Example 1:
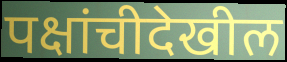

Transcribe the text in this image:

पक्षांचीदेखील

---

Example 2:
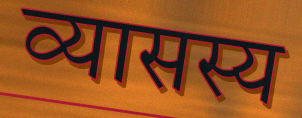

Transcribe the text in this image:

व्यासस्य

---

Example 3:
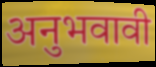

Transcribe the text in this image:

अनुभवावी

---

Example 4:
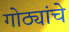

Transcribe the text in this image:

गोठ्यांचे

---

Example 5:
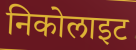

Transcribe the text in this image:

निकोलाइट